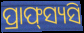
ପ୍ରାଫ୍‌ସ୍ୟସି